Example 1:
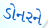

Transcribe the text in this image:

ડોનરને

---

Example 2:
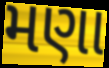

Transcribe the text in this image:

મણા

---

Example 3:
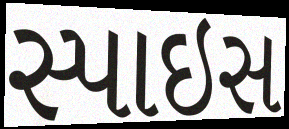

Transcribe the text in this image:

સ્પાઇસ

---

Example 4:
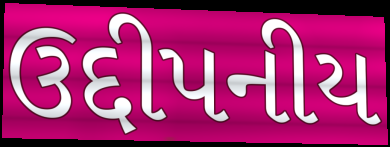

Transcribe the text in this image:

ઉદ્દીપનીય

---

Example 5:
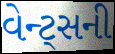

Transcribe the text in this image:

વેન્ટ્સની